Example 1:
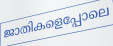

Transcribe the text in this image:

ജാതികളെപ്പോലെ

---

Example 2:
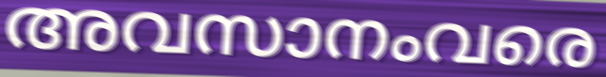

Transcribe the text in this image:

അവസാനംവരെ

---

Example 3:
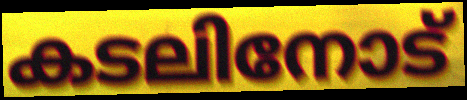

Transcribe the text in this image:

കടലിനോട്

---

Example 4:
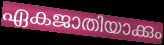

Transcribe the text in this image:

ഏകജാതിയാക്കും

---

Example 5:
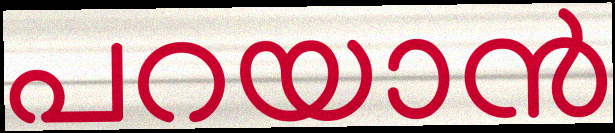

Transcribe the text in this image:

പറയാൻ